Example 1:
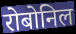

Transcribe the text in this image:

रोबोनिल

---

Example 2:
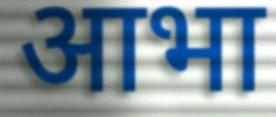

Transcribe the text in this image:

आभा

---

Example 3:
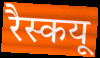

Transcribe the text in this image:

रैस्कयू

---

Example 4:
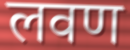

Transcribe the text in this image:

लवण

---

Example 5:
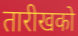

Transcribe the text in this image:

तारीखको